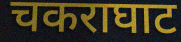
चकराघाट